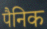
पैनिक